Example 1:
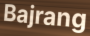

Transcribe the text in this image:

Bajrang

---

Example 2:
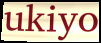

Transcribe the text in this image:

ukiyo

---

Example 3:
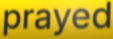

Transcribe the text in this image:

prayed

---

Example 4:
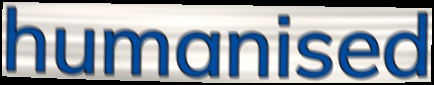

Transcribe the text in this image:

humanised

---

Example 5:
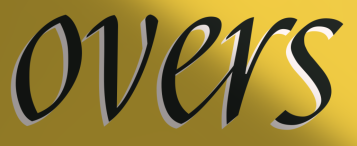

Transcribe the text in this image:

overs